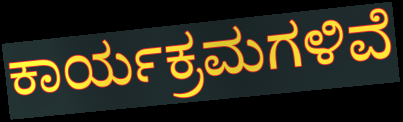
ಕಾರ್ಯಕ್ರಮಗಳಿವೆ